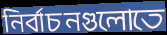
নির্বাচনগুলোতে